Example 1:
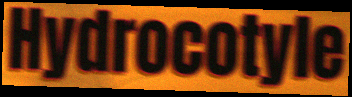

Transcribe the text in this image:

Hydrocotyle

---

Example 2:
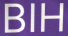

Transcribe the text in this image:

BIH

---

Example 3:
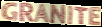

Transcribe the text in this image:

GRANITE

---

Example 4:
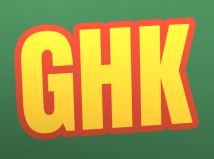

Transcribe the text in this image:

GHK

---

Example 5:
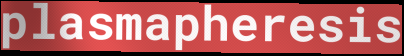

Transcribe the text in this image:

plasmapheresis